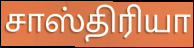
சாஸ்திரியா